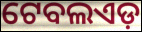
ଟେବଲଏଡ଼